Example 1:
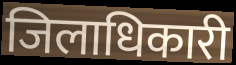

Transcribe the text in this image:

जिलाधिकारी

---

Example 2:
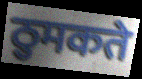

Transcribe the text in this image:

ठुमकते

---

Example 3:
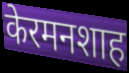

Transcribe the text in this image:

केरमनशाह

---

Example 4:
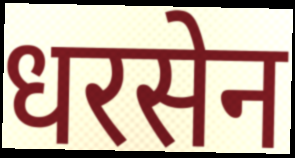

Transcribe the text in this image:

धरसेन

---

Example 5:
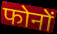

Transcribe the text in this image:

फोनों